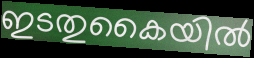
ഇടതുകൈയിൽ